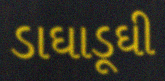
ડાઘાડૂઘી